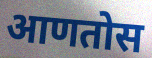
आणतोस